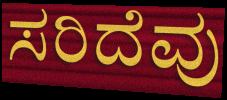
ಸರಿದೆವು